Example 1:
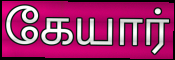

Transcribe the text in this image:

கேயார்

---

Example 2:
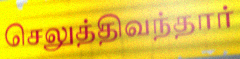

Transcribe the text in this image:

செலுத்திவந்தார்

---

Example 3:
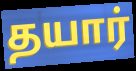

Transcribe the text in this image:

தயார்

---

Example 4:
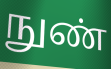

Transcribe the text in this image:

நுண்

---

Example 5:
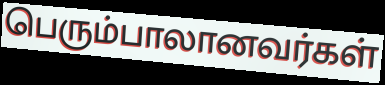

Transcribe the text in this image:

பெரும்பாலானவர்கள்